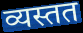
व्यस्तत